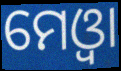
ମେଓ୍ୱା